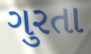
ગુરતા